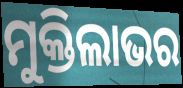
ମୁକ୍ତିଲାଭର